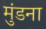
मुंडना